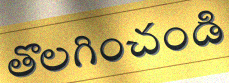
తొలగించండి